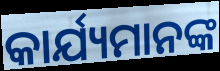
କାର୍ଯ୍ୟମାନଙ୍କ